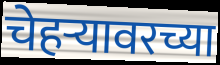
चेहर्‍यावरच्या